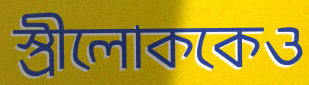
স্ত্রীলোককেও